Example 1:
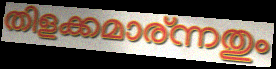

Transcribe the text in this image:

തിളക്കമാര്ന്നതും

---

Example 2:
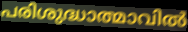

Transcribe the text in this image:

പരിശുദ്ധാത്മാവിൽ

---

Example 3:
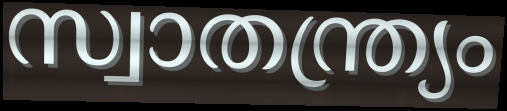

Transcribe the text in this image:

സ്വാതന്ത്ര്യം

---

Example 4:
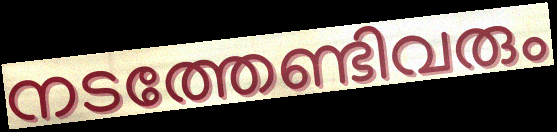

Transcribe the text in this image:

നടത്തേണ്ടിവരും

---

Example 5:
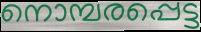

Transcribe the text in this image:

നൊമ്പരപ്പെട്ട